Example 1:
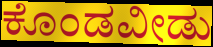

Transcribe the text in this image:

ಕೊಂಡವೀಡು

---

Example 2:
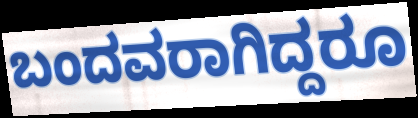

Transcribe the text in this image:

ಬಂದವರಾಗಿದ್ದರೂ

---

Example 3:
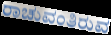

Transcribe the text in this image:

ರಾಚುವಂತಿರುವ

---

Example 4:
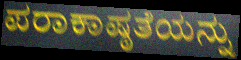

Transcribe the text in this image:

ಪರಾಕಾಷ್ಠತೆಯನ್ನು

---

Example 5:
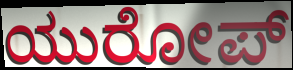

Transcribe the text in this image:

ಯುರೋಪ್